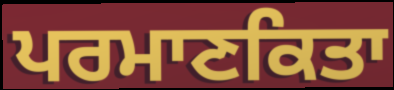
ਪਰਮਾਣਕਿਤਾ